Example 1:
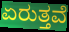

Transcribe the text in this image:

ಏರುತ್ತವೆ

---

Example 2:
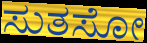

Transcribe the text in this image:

ಸುತಸೋ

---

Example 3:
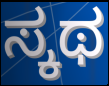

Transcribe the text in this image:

ಸ್ಕಥ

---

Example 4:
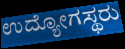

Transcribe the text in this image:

ಉದ್ಯೋಗಸ್ಥರು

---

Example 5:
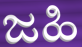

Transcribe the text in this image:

ಜಹಿ